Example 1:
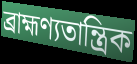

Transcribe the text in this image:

ব্রাহ্মণ্যতান্ত্রিক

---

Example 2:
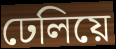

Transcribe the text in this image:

ঢেলিয়ে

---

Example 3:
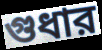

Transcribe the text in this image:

গুধার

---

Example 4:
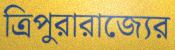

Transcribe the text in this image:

ত্রিপুরারাজ্যের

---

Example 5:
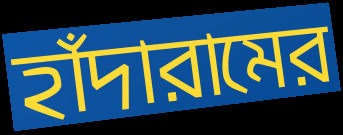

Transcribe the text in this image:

হাঁদারামের